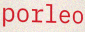
porleo